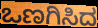
ಒಣಗಿಸಿದ